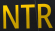
NTR